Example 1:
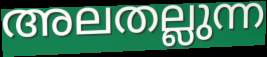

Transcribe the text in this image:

അലതല്ലുന്ന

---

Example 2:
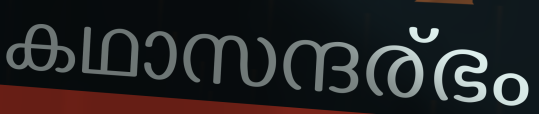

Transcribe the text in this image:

കഥാസന്ദര്ഭം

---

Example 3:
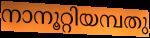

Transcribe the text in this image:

നാനൂറ്റിയമ്പതു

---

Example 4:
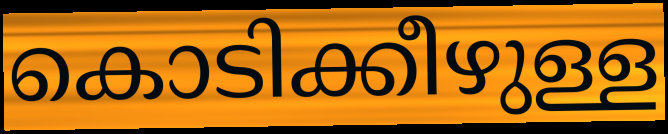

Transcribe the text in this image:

കൊടിക്കീഴുള്ള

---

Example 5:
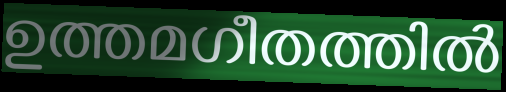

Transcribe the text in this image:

ഉത്തമഗീതത്തിൽ